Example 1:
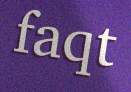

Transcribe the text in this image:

faqt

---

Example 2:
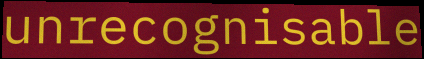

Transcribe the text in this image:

unrecognisable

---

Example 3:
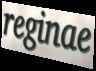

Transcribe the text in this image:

reginae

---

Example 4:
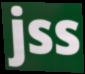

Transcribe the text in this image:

jss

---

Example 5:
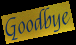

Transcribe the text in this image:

Goodbye